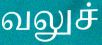
வலுச்